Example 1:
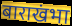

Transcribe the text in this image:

बाराखंभा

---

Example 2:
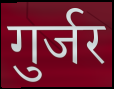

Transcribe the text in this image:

गुर्जर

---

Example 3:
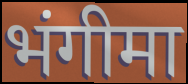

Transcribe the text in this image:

भंगीमा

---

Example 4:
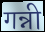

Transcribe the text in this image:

गन्नी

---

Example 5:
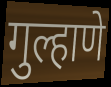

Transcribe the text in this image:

गुल्हाणे